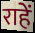
राहें